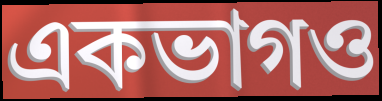
একভাগও